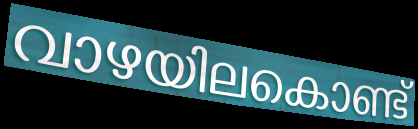
വാഴയിലകൊണ്ട്